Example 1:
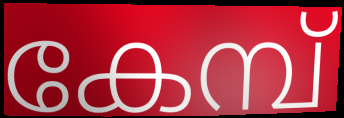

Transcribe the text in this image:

കേമ്പ്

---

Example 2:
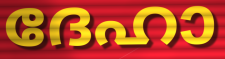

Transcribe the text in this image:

ദേഹാ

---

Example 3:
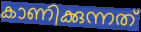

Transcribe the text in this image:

കാണിക്കുന്നത്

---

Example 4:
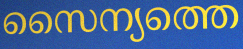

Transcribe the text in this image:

സൈന്യത്തെ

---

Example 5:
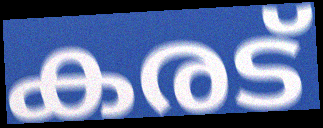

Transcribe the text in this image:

കരട്